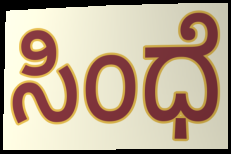
ಸಿಂಧೆ